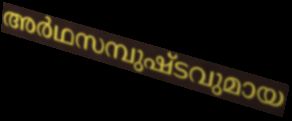
അർഥസമ്പുഷ്ടവുമായ